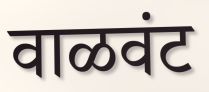
वाळवंट